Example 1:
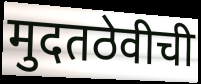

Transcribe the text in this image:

मुदतठेवीची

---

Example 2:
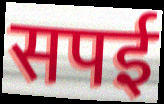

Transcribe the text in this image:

सपई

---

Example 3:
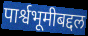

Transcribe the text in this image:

पार्श्वभूमीबद्दल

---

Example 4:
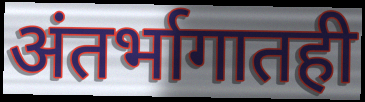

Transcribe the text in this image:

अंतर्भागातही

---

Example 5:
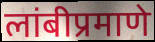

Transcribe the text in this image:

लांबीप्रमाणे